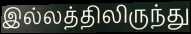
இல்லத்திலிருந்து